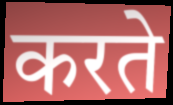
करते